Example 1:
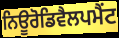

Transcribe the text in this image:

ਨਿਊਰੋਡਿਵੈਲਪਮੈਂਟ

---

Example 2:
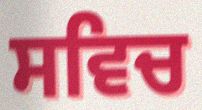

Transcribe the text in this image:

ਸਵਿਚ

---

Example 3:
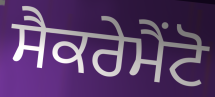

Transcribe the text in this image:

ਸੈਕਰੇਮੈਂਟੋ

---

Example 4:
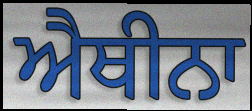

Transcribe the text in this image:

ਐਥੀਨਾ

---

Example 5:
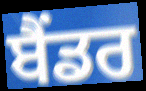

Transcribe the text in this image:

ਬੈਂਡਰ